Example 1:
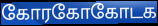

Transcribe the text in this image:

கோரகோகோடக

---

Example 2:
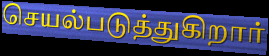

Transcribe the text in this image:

செயல்படுத்துகிறார்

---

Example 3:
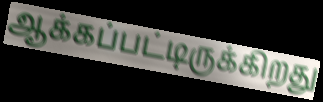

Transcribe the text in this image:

ஆக்கப்பட்டிருக்கிறது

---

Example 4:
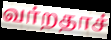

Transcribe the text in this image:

வர்றதாச்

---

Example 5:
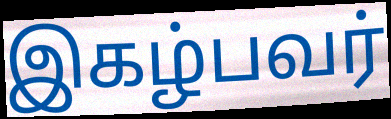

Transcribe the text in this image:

இகழ்பவர்